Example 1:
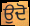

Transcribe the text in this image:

ਉਦੋ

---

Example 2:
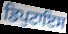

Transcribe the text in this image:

ਡਿਪੁਟਾਇਸ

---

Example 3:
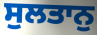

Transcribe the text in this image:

ਸੁਲਤਾਨੁ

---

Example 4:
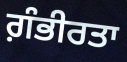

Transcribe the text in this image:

ਗ਼ੰਭੀਰਤਾ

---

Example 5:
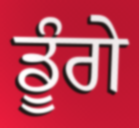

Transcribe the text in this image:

ਡੂੰਗੇ